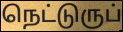
நெட்டுருப்